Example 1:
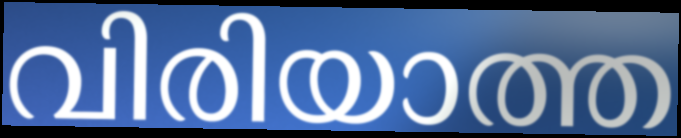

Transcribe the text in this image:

വിരിയാത്ത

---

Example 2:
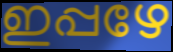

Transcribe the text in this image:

ഇപ്പഴേ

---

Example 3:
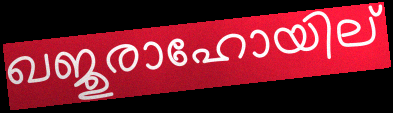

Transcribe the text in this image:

ഖജുരാഹോയില്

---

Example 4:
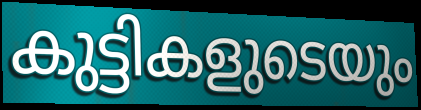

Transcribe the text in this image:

കുട്ടികളുടെയും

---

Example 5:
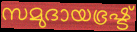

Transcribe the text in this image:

സമുദായഭ്രഷ്ട്